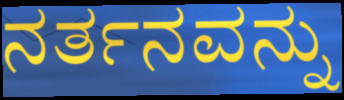
ನರ್ತನವನ್ನು